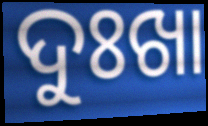
ଦୁଃଖା